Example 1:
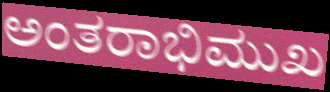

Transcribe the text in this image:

ಅಂತರಾಭಿಮುಖ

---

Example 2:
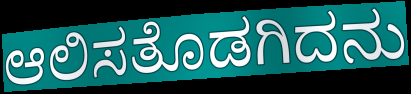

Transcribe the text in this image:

ಆಲಿಸತೊಡಗಿದನು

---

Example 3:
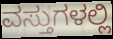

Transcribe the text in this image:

ವಸ್ತುಗಳಲ್ಲಿ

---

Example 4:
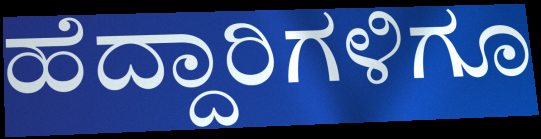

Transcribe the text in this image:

ಹೆದ್ದಾರಿಗಳಿಗೂ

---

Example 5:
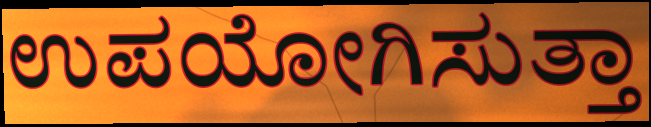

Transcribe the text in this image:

ಉಪಯೋಗಿಸುತ್ತಾ